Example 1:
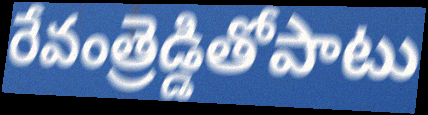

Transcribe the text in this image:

రేవంత్రెడ్డితోపాటు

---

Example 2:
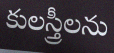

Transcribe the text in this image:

కులస్త్రీలను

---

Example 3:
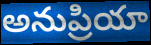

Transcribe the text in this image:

అనుప్రియా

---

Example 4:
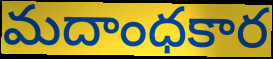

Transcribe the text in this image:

మదాంధకార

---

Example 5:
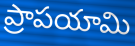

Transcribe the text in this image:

ప్రాపయామి